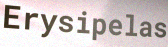
Erysipelas